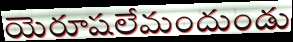
యెరూషలేమందుండు